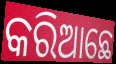
କରିଆଛେ